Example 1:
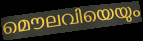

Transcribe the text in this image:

മൌലവിയെയും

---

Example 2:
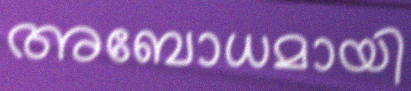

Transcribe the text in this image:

അബോധമായി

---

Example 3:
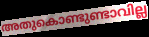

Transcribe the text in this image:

അതുകൊണ്ടുണ്ടാവില്ല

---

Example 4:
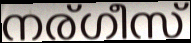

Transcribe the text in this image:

നര്ഗീസ്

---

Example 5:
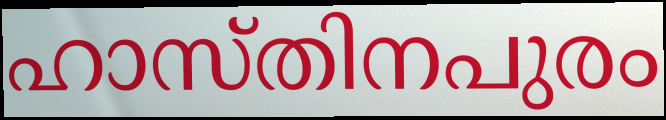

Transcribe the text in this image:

ഹാസ്തിനപുരം